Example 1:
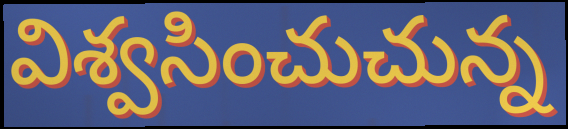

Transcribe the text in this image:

విశ్వసించుచున్న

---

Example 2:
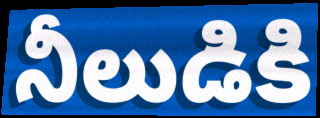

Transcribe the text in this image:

నీలుడికి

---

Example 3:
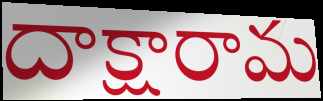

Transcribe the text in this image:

దాక్షారామ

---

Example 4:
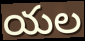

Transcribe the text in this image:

యల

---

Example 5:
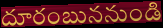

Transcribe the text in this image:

దూరంబుననుండి